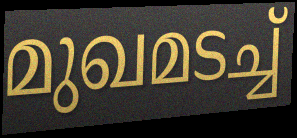
മുഖമടച്ച്